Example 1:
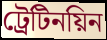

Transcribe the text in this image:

ট্রেটিনয়িন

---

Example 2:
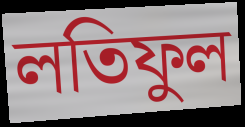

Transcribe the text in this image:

লতিফুল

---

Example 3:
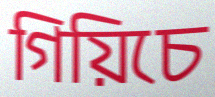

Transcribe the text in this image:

গিয়িচে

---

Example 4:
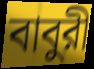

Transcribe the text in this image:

বাবুরী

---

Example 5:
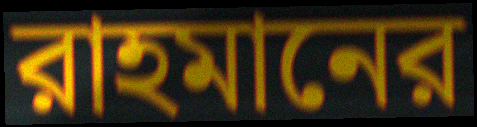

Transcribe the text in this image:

রাহমানের